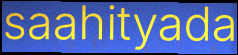
saahityada